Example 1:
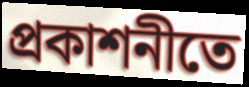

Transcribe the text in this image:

প্রকাশনীতে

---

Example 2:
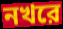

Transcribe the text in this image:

নখরে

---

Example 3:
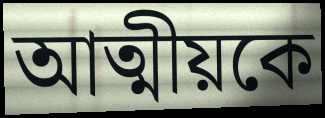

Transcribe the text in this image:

আত্মীয়কে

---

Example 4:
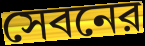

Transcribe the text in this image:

সেবনের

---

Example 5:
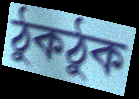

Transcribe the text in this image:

ঠুকঠুক